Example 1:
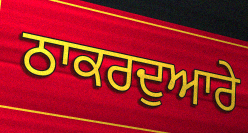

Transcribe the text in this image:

ਠਾਕਰਦੁਆਰੇ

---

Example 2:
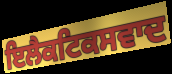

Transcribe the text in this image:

ਇਲੈਕਟਿਕਸਵਾਦ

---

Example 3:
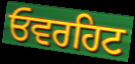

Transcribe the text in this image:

ਓਵਰਹਿਟ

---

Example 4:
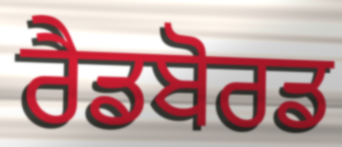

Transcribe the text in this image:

ਰੈਡਬੋਰਡ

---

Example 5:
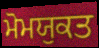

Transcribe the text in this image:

ਮੋਮਯੁਕਤ